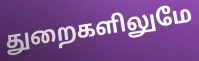
துறைகளிலுமே